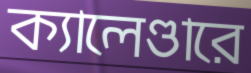
ক্যালেণ্ডারে